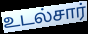
உடல்சார்